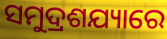
ସମୁଦ୍ରଶଯ୍ୟାରେ